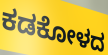
ಕಡಕೋಳದ